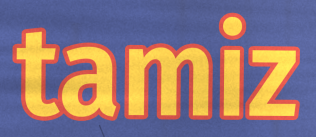
tamiz